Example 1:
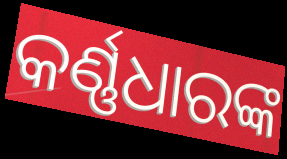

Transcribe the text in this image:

କର୍ଣ୍ଣଧାରଙ୍କ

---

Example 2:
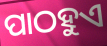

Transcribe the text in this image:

ପାଠହୁଏ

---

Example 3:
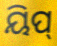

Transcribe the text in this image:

ୟିପ୍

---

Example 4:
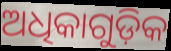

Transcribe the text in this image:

ଅଧିକାଗୁଡ଼ିକ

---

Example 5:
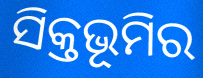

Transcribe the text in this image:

ସିକ୍ତଭୂମିର